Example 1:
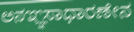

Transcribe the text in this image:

ಅನಞ್ಞಸಾಧಾರಣೇನ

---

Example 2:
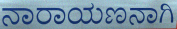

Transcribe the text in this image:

ನಾರಾಯಣನಾಗಿ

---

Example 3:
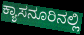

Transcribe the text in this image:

ಕ್ಯಾಸನೂರಿನಲ್ಲಿ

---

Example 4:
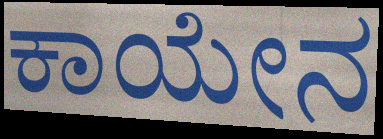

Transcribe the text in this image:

ಕಾಯೇನ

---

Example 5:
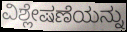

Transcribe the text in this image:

ವಿಶ್ಲೇಷಣೆಯನ್ನು